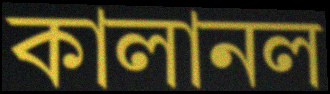
কালানল